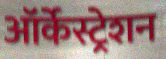
ऑर्केस्ट्रेशन